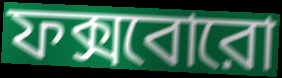
ফক্সবোরো